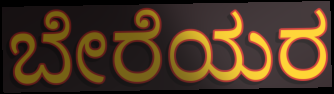
ಬೇರೆಯರ